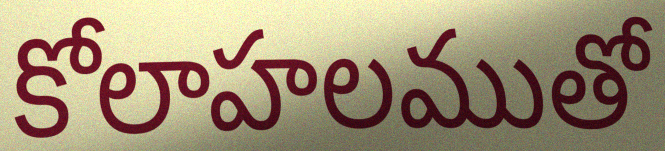
కోలాహలముతో